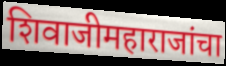
शिवाजीमहाराजांचा